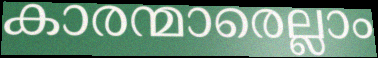
കാരന്മാരെല്ലാം